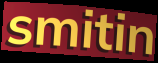
smitin